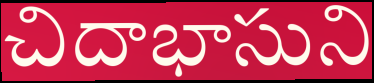
చిదాభాసుని